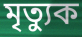
মৃত্যুক